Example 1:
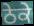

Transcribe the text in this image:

ਠੇਕੇ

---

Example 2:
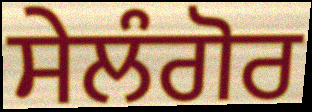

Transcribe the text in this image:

ਸੇਲੰਗੋਰ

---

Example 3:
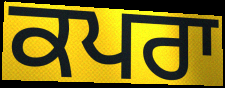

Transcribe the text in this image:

ਕਪਰਾ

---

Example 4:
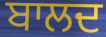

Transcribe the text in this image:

ਬਾਲਦ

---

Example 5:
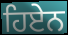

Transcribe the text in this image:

ਹਿਏਨ